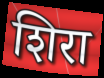
शिरा